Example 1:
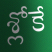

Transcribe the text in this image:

శ్లోకే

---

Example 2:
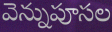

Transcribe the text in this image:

వెన్నుపూసల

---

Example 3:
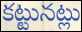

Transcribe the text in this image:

కట్టునట్లు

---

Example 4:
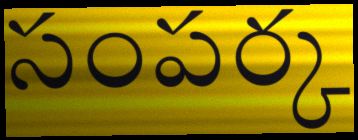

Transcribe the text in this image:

సంపర్క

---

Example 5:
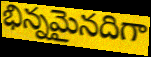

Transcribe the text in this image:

భిన్నమైనదిగా